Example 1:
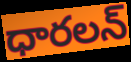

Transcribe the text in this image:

ధారలన్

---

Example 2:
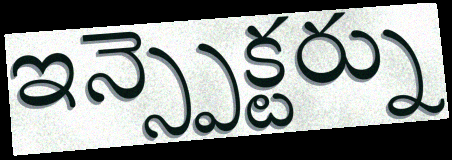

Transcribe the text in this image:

ఇన్స్పెక్టర్ను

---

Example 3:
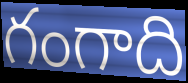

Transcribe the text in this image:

గంగాది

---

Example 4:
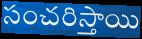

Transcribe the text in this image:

సంచరిస్తాయి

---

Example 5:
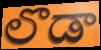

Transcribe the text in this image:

లొడా